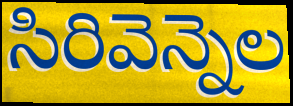
సిరివెన్నెల